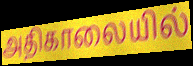
அதிகாலையில்